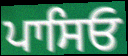
ਪਾਸਿਓ